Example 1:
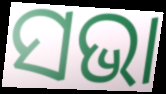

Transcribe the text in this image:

ସଭା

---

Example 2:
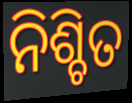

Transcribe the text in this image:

ନିଶ୍ଚିତ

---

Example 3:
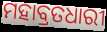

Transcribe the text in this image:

ମହାବ୍ରତଧାରୀ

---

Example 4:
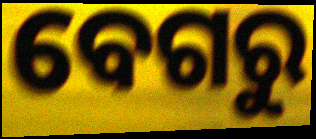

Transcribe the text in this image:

ବେଗରୁ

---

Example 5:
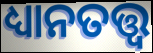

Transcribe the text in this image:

ଧ୍ୟାନତତ୍ତ୍ୱ